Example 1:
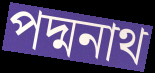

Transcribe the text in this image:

পদ্মনাথ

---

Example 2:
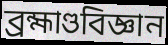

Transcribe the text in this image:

ব্ৰহ্মাণ্ডবিজ্ঞান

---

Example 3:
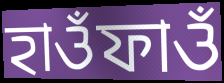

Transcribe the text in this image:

হাওঁফাওঁ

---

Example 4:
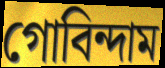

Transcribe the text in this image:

গোবিন্দাম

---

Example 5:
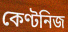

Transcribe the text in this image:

কেণ্টনিজ